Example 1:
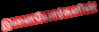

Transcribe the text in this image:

இளையோர்களின்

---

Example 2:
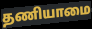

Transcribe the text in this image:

தணியாமை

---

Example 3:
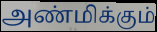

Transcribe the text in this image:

அண்மிக்கும்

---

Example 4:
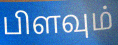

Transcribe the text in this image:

பிளவும்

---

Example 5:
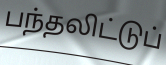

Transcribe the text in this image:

பந்தலிட்டுப்